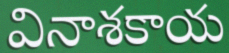
వినాశకాయ